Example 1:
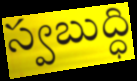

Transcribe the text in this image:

స్వబుద్ధి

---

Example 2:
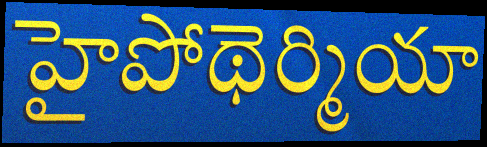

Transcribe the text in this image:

హైపోథెర్మియా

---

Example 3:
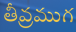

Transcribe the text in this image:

తీవ్రముగ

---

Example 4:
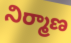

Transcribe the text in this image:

నిర్మాణ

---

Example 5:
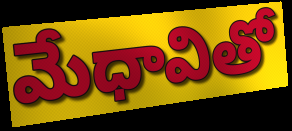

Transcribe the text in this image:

మేధావితో